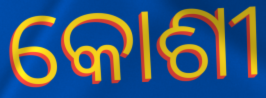
କୋଶୀ